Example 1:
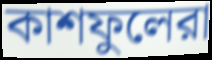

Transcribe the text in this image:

কাশফুলেরা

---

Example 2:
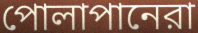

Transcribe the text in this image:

পোলাপানেরা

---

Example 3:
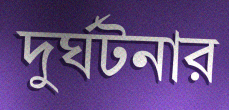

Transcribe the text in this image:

দুর্ঘটনার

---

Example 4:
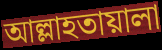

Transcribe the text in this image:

আল্লাহতায়ালা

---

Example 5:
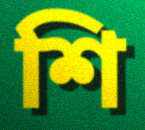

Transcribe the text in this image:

শি